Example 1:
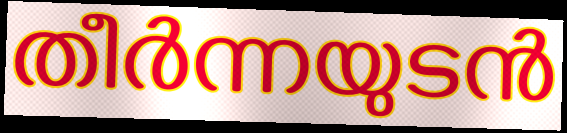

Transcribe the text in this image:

തീർന്നയുടൻ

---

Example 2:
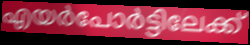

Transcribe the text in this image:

എയർപോർട്ടിലേക്ക്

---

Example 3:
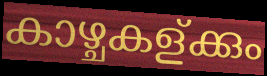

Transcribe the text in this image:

കാഴ്ചകള്ക്കും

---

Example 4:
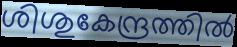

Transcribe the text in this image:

ശിശുകേന്ദ്രത്തിൽ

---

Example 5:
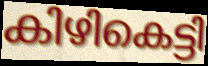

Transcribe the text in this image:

കിഴികെട്ടി